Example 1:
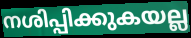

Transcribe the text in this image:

നശിപ്പിക്കുകയല്ല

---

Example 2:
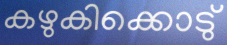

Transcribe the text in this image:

കഴുകിക്കൊടു്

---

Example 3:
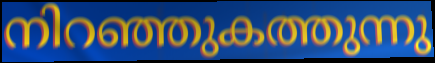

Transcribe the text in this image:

നിറഞ്ഞുകത്തുന്നു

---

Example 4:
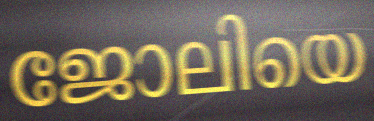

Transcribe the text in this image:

ജോലിയെ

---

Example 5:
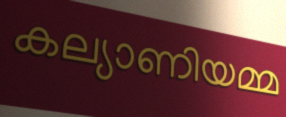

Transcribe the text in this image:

കല്യാണിയമ്മ